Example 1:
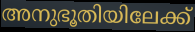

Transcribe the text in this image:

അനുഭൂതിയിലേക്ക്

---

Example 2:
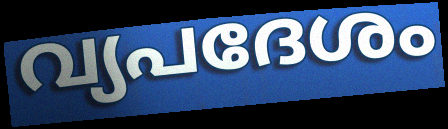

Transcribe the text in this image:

വ്യപദേശം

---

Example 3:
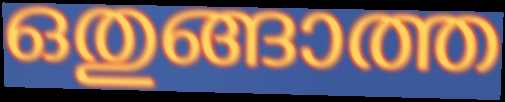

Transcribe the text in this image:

ഒതുങ്ങാത്ത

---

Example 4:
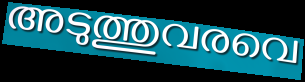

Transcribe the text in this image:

അടുത്തുവരവെ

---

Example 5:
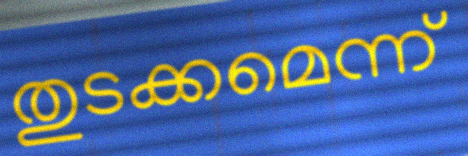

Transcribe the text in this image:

തുടക്കമെന്ന്